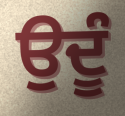
ਉਦੂੰ